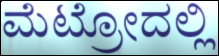
ಮೆಟ್ರೋದಲ್ಲಿ